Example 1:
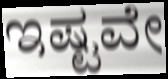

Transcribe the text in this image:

ಇಷ್ಟವೇ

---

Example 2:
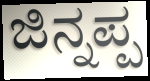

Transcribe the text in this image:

ಜಿನ್ನಪ್ಪ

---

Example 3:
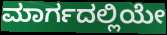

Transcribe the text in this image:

ಮಾರ್ಗದಲ್ಲಿಯೇ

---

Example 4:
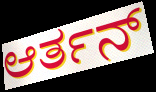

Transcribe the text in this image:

ಆರ್ತನ್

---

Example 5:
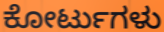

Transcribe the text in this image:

ಕೋರ್ಟುಗಳು